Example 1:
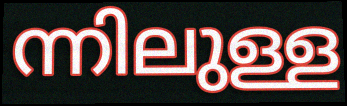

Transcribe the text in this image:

ന്നിലുള്ള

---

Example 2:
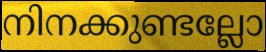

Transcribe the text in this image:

നിനക്കുണ്ടല്ലോ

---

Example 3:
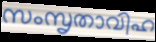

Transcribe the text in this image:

സംസൃതാവിഹ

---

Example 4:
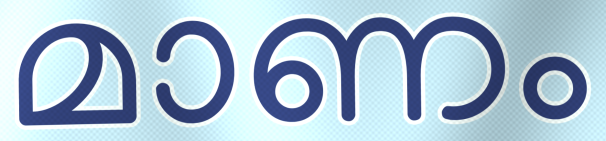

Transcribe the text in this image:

മാണം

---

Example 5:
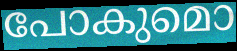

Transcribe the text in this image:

പോകുമൊ